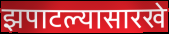
झपाटल्यासारखे